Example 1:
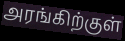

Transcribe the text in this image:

அரங்கிற்குள்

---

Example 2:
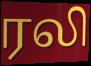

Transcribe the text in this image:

ரலி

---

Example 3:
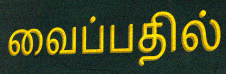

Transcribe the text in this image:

வைப்பதில்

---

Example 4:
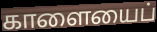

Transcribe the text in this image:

காளையைப்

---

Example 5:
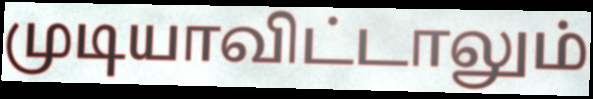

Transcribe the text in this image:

முடியாவிட்டாலும்